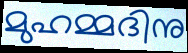
മുഹമ്മദിനു